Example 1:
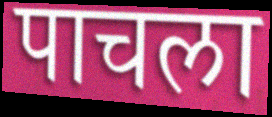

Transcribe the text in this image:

पाचला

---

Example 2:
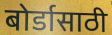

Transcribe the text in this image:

बोर्डासाठी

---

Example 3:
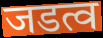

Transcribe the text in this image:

जडत्व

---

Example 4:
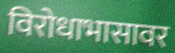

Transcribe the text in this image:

विरोधाभासावर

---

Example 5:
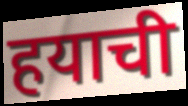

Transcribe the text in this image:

हयाची